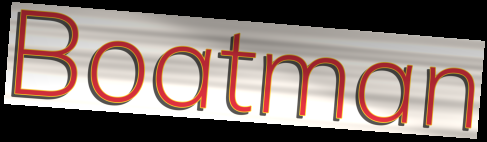
Boatman